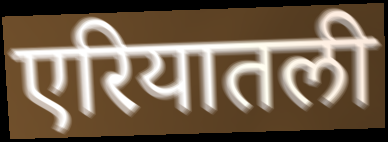
एरियातली